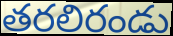
తరలిరండు